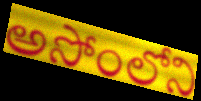
అసోంలోని